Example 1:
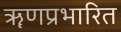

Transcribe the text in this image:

ॠणप्रभारित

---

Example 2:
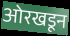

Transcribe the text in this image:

ओरखडून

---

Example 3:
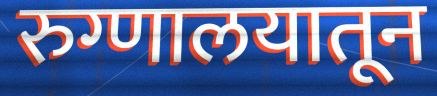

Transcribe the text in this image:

रुग्णालयातून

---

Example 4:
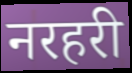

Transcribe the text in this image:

नरहरी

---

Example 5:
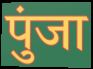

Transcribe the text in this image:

पुंजा